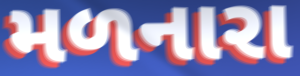
મળનારા